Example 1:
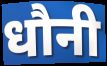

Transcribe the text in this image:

धौनी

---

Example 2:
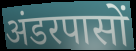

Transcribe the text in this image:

अंडरपासों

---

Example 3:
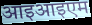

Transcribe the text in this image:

आइआइएम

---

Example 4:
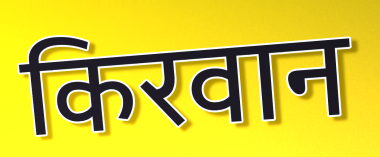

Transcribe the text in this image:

किरवान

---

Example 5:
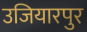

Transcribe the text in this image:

उजियारपुर